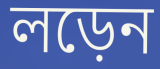
লড়েন